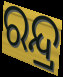
ରନ୍ଦ୍ର